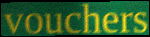
vouchers